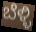
ಬೆಳ್ಳಿ